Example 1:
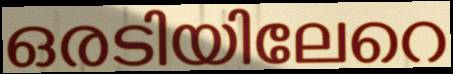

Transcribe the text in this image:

ഒരടിയിലേറെ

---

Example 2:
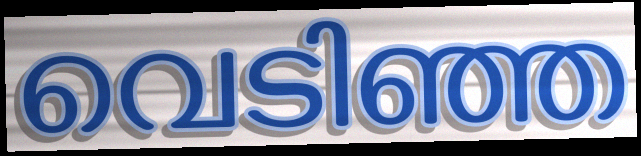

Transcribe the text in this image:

വെടിഞ്ഞ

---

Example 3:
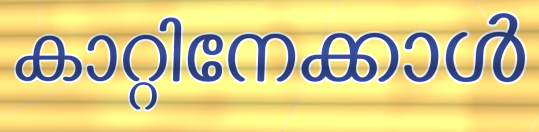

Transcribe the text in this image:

കാറ്റിനേക്കാൾ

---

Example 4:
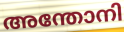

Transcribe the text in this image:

അന്തോനി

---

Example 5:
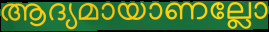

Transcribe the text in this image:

ആദ്യമായാണല്ലോ